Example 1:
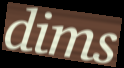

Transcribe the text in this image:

dims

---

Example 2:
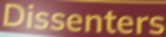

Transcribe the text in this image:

Dissenters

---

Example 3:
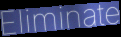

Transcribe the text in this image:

Eliminate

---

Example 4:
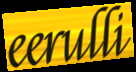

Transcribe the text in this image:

eerulli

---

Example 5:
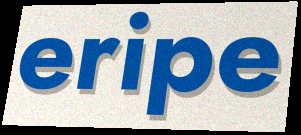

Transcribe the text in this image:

eripe